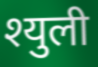
श्युली